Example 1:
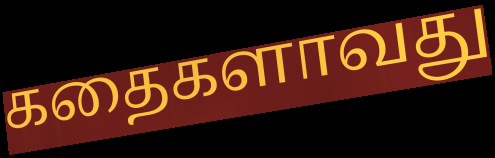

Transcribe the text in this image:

கதைகளாவது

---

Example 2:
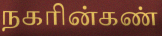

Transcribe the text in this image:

நகரின்கண்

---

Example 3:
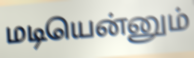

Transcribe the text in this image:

மடியென்னும்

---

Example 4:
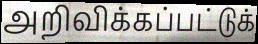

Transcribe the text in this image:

அறிவிக்கப்பட்டுக்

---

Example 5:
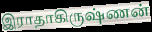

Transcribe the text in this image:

இராதாகிருஷ்ணன்